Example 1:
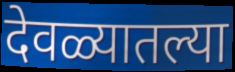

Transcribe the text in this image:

देवळ्यातल्या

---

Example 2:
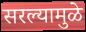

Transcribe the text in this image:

सरल्यामुळे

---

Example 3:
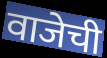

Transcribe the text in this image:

वाजेची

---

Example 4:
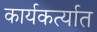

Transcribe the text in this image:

कार्यकर्त्यात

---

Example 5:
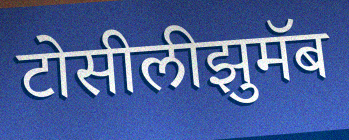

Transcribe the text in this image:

टोसीलीझुमॅब